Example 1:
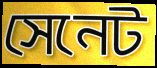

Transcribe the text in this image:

সেনেট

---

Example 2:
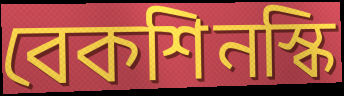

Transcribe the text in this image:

বেকশিনস্কি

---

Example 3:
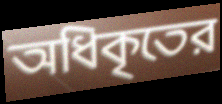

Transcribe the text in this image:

অধিকৃতের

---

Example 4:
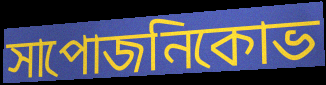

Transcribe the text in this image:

সাপোজনিকোভ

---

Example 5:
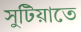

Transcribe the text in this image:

সুটিয়াতে